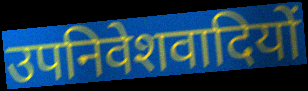
उपनिवेशवादियों